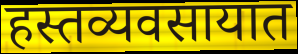
हस्तव्यवसायात